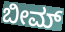
ಬೀಮ್